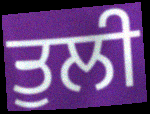
ਤੁਲੀ